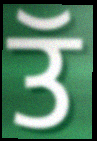
उॅ